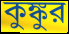
কুঙ্কুর